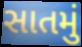
સાતમું